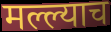
मल्ल्याच